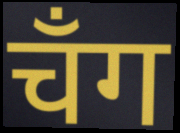
चँग